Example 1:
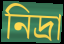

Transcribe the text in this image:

নিদ্রা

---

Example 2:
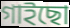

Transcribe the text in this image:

গাইছো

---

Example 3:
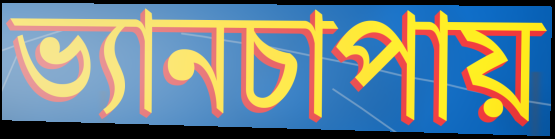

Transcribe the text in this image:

ভ্যানচাপায়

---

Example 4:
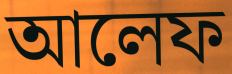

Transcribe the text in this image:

আলেফ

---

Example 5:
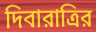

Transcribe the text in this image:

দিবারাত্রির